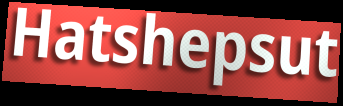
Hatshepsut